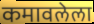
कमावलेला